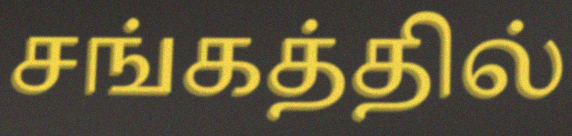
சங்கத்தில்